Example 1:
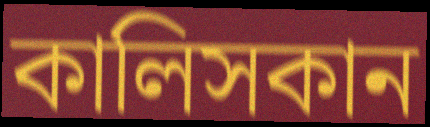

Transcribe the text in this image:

কালিসকান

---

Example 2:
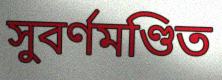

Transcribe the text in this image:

সুবর্ণমণ্ডিত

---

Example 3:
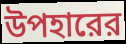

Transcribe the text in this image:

উপহারের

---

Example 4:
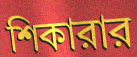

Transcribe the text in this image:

শিকারার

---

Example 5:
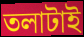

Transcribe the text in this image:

তলাটাই